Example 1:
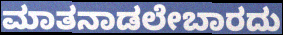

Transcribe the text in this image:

ಮಾತನಾಡಲೇಬಾರದು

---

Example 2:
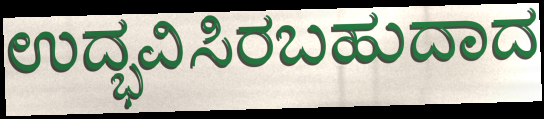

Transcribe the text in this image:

ಉದ್ಭವಿಸಿರಬಹುದಾದ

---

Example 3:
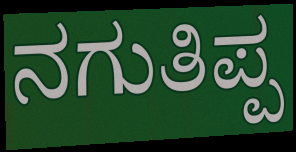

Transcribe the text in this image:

ನಗುತಿಪ್ಪ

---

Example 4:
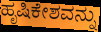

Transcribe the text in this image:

ಹೃಷಿಕೇಶವನ್ನು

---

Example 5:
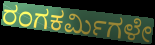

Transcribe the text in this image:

ರಂಗಕರ್ಮಿಗಳೇ